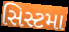
સિસ્ટમા